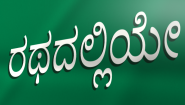
ರಥದಲ್ಲಿಯೇ